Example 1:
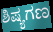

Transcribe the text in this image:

ಶಿಷ್ಯಗಣ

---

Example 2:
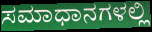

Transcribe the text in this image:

ಸಮಾಧಾನಗಳಲ್ಲಿ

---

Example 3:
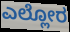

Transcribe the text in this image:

ಎಲ್ಲೋರ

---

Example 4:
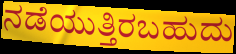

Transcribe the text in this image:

ನಡೆಯುತ್ತಿರಬಹುದು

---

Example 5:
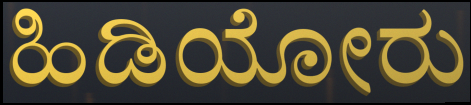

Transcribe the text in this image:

ಹಿಡಿಯೋರು